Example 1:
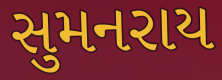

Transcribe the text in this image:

સુમનરાય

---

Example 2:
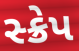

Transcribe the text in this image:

સ્ક્રેપ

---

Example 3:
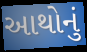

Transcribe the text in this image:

આથોનું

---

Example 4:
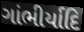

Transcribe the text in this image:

ગાંભીર્યાદિ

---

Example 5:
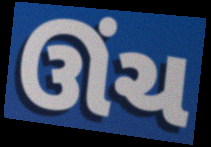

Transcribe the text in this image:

ઊંચ